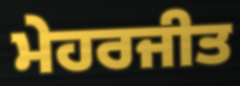
ਮੇਹਰਜੀਤ